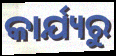
କାର୍ଯ୍ୟରୁ